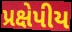
પ્રક્ષેપીય